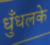
धुँधलके